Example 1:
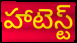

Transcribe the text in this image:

హాటెస్ట్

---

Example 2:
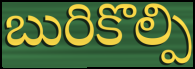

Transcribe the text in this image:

బురికొల్పి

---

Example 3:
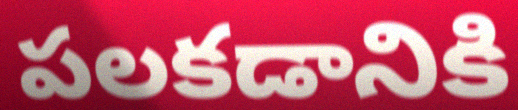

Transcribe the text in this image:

పలకడానికి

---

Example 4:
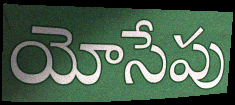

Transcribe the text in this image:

యోసేపు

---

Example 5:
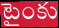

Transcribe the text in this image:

టైంకు